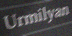
Urmilyan